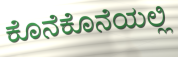
ಕೊನೆಕೊನೆಯಲ್ಲಿ